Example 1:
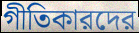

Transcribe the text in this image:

গীতিকারদের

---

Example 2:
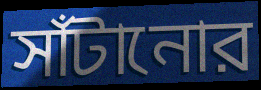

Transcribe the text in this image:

সাঁটানোর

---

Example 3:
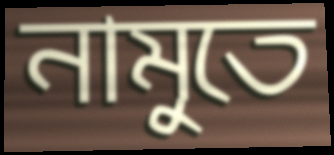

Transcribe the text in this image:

নামুতে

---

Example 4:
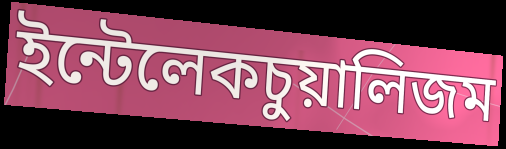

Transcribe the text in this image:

ইন্টেলেকচুয়ালিজম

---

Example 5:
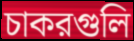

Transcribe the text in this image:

চাকরগুলি